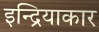
इन्द्रियाकार